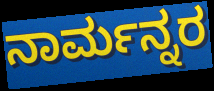
ನಾರ್ಮನ್ನರ